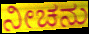
ನೀಚನು